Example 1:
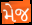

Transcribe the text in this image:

મેજ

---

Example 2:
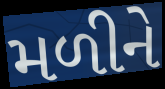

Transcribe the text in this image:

મળીને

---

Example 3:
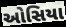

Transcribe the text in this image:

ઓસિયા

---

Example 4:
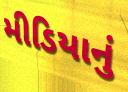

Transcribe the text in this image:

મીડિયાનું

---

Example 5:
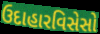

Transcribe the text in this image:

ઉદાહારવિસેસો